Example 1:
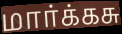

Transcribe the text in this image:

மார்க்கசு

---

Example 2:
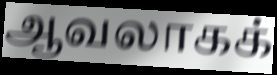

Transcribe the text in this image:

ஆவலாகக்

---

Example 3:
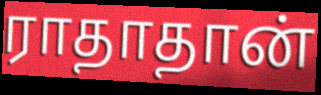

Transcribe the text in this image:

ராதாதான்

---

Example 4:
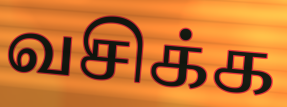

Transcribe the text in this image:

வசிக்க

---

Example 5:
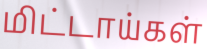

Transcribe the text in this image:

மிட்டாய்கள்